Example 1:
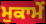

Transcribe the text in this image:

ਮੁਕਾਮੇਂ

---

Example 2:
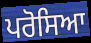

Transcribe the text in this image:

ਪਰੋਸਿਆ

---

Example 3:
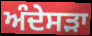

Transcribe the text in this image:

ਅੰਦੇਸੜਾ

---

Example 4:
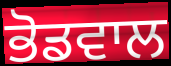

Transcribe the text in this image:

ਭੋਡਵਾਲ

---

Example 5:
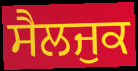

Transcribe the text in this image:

ਸੈਲਜੁਕ